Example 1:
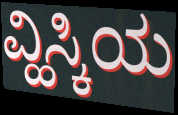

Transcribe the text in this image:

ವ್ಹಿಸ್ಕಿಯ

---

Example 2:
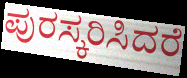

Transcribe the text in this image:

ಪುರಸ್ಕರಿಸಿದರೆ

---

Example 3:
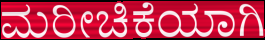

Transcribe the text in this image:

ಮರೀಚಿಕೆಯಾಗಿ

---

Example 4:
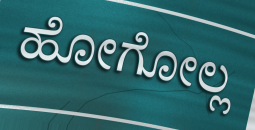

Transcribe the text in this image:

ಹೋಗೋಲ್ಲ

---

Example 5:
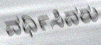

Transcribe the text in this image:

ವರ್ಧಿಸಿದರು